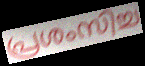
പ്രശംസിച്ച